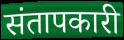
संतापकारी